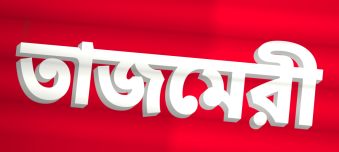
তাজমেরী